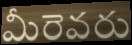
మీరెవరు